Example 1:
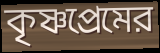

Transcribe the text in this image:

কৃষ্ণপ্রেমের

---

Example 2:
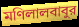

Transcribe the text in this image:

মণিলালবাবুর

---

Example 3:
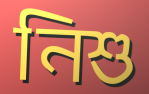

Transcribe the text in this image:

নিশু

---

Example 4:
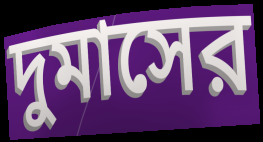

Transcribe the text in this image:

দুমাসের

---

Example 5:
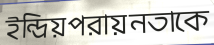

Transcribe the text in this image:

ইন্দ্রিয়পরায়নতাকে